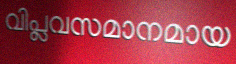
വിപ്ലവസമാനമായ